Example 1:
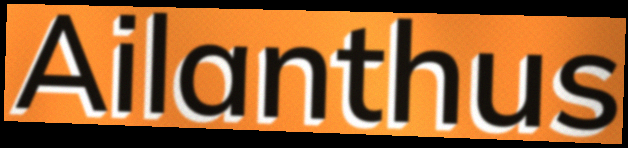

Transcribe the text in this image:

Ailanthus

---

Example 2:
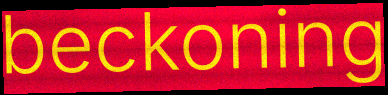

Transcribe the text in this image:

beckoning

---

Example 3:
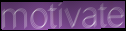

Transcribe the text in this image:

motivate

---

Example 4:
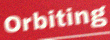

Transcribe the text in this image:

Orbiting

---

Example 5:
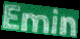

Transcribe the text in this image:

Emin